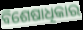
ବିଶେଷାଧିକାର